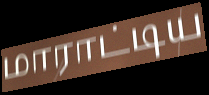
மாராட்டிய